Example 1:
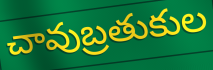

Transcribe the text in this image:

చావుబ్రతుకుల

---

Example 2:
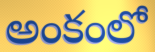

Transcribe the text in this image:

అంకంలో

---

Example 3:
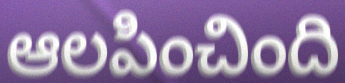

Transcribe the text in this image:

ఆలపించింది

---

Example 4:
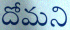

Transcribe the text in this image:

దోమని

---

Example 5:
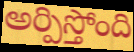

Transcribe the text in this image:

అర్పిస్తోంది